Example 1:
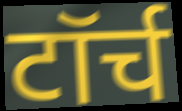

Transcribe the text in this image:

टॉर्च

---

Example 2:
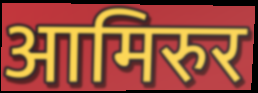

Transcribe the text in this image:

आमिरुर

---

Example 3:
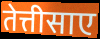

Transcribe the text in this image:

तेत्तीसाए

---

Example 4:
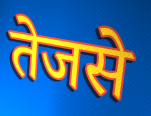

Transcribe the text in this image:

तेजसे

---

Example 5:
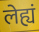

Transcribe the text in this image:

लेह्यं